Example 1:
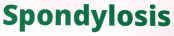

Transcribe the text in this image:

Spondylosis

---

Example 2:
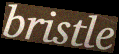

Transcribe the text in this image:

bristle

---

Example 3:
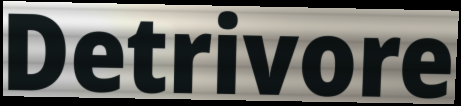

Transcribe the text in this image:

Detrivore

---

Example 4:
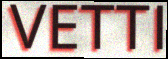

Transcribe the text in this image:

VETTI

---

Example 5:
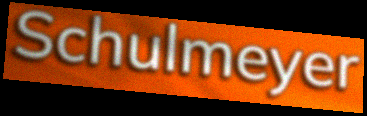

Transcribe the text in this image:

Schulmeyer